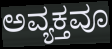
ಅವ್ಯಕ್ತವೂ